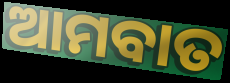
ଆମବାତ